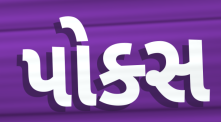
પોક્સ